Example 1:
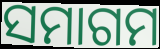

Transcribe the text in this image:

ସମାଗମ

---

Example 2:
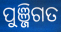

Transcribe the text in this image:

ପୁଞ୍ଜିଗତ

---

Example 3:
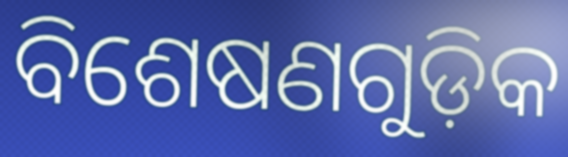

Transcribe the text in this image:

ବିଶେଷଣଗୁଡ଼ିକ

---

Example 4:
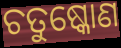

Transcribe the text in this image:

ଚତୁଷ୍କୋଣ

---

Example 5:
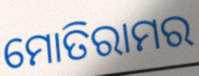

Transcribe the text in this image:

ମୋତିରାମର